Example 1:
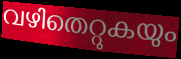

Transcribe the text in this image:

വഴിതെറ്റുകയും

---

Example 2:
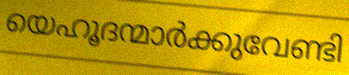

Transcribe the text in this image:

യെഹൂദന്മാർക്കുവേണ്ടി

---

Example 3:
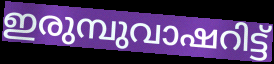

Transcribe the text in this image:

ഇരുമ്പുവാഷറിട്ട്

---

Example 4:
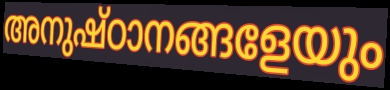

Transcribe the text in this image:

അനുഷ്ഠാനങ്ങളേയും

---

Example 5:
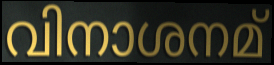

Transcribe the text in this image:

വിനാശനമ്